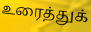
உரைத்துக்